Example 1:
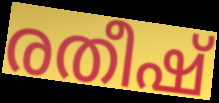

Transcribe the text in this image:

രതീഷ്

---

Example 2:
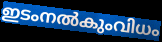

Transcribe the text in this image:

ഇടംനൽകുംവിധം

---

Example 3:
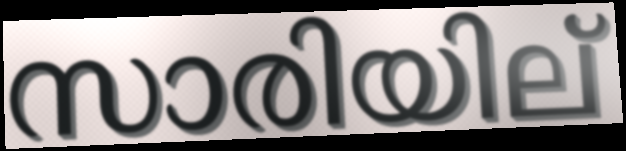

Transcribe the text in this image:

സാരിയില്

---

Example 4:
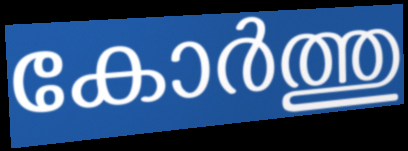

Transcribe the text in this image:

കോർത്തു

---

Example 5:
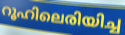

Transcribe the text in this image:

റൂഹിലെരിയിച്ച